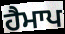
ਹੈਮਾਪ